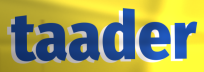
taader